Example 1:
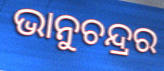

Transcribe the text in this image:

ଭାନୁଚନ୍ଦ୍ରର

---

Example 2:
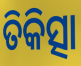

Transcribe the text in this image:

ତିକିତ୍ସା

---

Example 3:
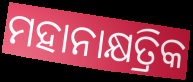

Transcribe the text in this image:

ମହାନାକ୍ଷତ୍ରିକ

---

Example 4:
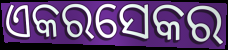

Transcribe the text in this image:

ଏକରସେକର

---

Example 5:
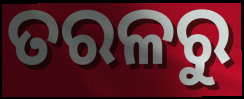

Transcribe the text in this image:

ତରଳରୁ